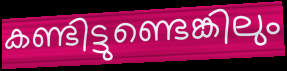
കണ്ടിട്ടുണ്ടെങ്കിലും